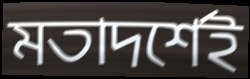
মতাদর্শেই